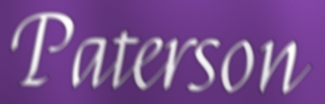
Paterson